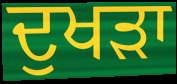
ਦੁਖੜਾ